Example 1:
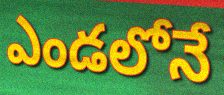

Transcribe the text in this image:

ఎండలోనే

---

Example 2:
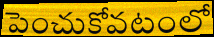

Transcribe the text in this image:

పెంచుకోవటంలో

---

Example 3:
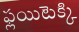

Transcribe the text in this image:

ఫ్లయిటెక్కి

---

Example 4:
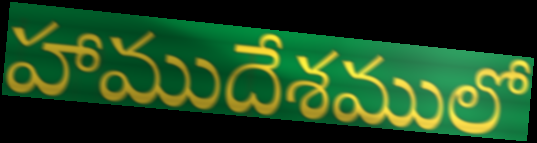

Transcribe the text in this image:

హాముదేశములో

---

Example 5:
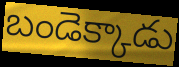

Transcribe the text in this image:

బండెక్కాడు